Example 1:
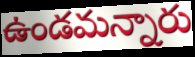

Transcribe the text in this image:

ఉండమన్నారు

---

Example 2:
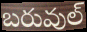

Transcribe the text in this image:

బరువుల్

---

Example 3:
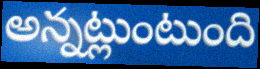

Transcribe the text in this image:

అన్నట్లుంటుంది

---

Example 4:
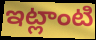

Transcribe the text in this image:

ఇట్లాంటి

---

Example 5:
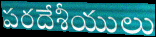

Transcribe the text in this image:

పరదేశీయులు